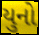
યુનો